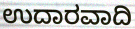
ಉದಾರವಾದಿ